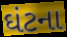
ઘંટના